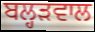
ਬਲ੍ਹੜਵਾਲ